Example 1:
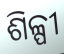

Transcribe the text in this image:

ଶିଳ୍ପୀ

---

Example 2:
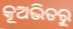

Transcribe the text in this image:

କୂଅଭିତରୁ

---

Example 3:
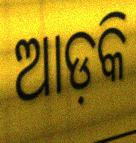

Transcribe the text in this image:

ଆଡ଼କି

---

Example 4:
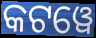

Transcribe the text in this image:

କଟୱେ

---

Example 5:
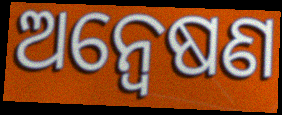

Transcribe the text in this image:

ଅନ୍ବେଷଣ